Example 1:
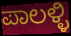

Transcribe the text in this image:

ಪಾಲಳ್ಳಿ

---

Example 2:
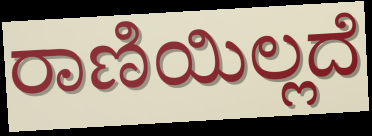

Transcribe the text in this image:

ರಾಣಿಯಿಲ್ಲದೆ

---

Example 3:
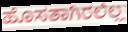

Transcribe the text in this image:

ಹೊಸತಾಗಿರಲಿಲ್ಲ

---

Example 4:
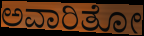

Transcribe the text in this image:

ಅವಾರಿತೋ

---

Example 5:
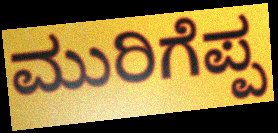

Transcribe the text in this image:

ಮುರಿಗೆಪ್ಪ